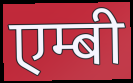
एम्बी